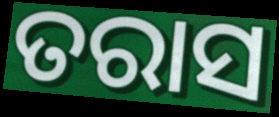
ତରାସ